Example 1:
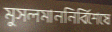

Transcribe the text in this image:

মুসলমাননির্বিশেষে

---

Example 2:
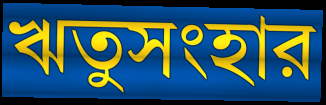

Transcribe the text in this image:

ঋতুসংহার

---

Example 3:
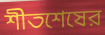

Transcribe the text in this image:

শীতশেষের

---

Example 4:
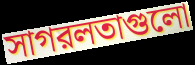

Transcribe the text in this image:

সাগরলতাগুলো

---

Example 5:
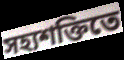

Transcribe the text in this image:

সহ্যশক্তিতে